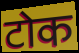
टोक